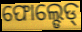
ଫୋଲ୍ଡେଡ୍